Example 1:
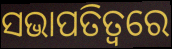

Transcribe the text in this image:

ସଭାପତିତ୍ଵରେ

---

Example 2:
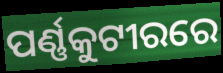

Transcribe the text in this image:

ପର୍ଣ୍ଣକୁଟୀରରେ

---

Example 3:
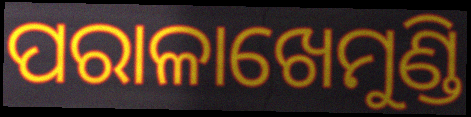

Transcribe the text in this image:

ପରାଳାଖେମୁଣ୍ଡି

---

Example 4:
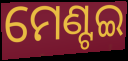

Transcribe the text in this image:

ମେଣ୍ଟଇ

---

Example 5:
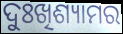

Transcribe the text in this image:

ଦୁଃଖିଶ୍ୟାମର